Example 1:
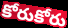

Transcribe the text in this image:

కోరుకోరు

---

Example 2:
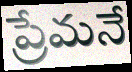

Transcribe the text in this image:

ప్రేమనే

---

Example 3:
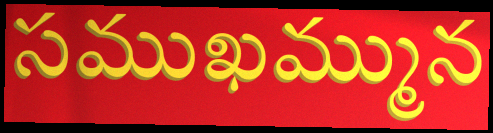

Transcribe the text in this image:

సముఖమ్మున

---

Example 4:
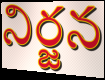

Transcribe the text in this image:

నిర్జన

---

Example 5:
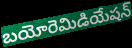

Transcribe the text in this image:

బయోరెమిడియేషన్